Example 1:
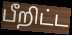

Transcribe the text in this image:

பீறிட்ட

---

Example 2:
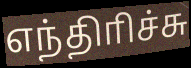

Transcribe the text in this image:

எந்திரிச்சு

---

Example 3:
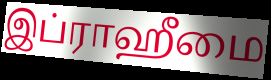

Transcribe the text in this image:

இப்ராஹீமை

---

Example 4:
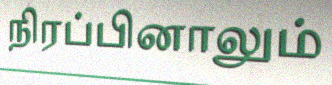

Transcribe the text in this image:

நிரப்பினாலும்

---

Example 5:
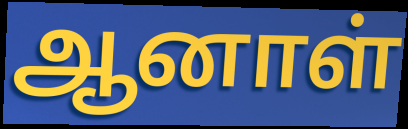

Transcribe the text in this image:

ஆனாள்